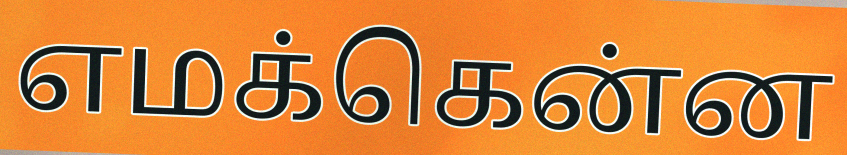
எமக்கென்ன